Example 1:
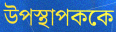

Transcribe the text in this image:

উপস্থাপককে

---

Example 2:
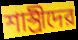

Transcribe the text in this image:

শাস্ত্রীদের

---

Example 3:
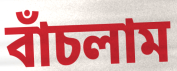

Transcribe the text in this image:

বাঁচলাম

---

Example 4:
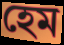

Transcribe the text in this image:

হেম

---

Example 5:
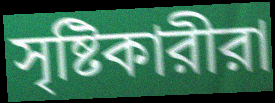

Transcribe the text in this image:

সৃষ্টিকারীরা